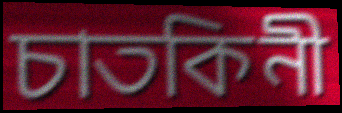
চাতকিনী